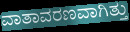
ವಾತಾವರಣವಾಗಿತ್ತು